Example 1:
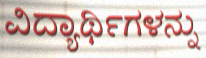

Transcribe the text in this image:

ವಿದ್ಯಾರ್ಥಿಗಳನ್ನು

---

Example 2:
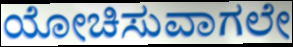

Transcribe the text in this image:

ಯೋಚಿಸುವಾಗಲೇ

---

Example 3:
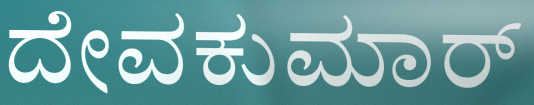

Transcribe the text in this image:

ದೇವಕುಮಾರ್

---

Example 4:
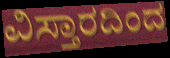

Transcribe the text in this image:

ವಿಸ್ತಾರದಿಂದ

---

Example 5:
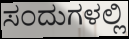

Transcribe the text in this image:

ಸಂದುಗಳಲ್ಲಿ